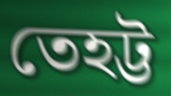
তেহট্ট